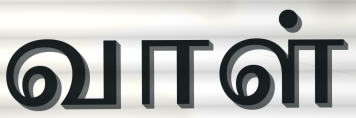
வாள்